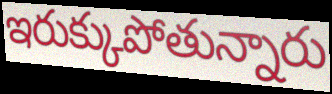
ఇరుక్కుపోతున్నారు